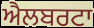
ਐਲਬਰਟਾ